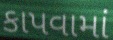
કાપવામાં